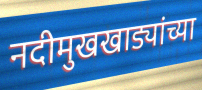
नदीमुखखाड्यांच्या